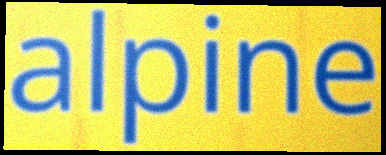
alpine